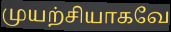
முயற்சியாகவே